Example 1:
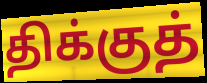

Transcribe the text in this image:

திக்குத்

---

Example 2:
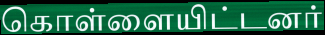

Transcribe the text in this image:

கொள்ளையிட்டனர்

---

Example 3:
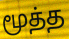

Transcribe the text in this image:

மூத்த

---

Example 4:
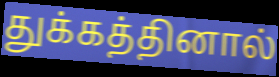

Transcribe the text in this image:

துக்கத்தினால்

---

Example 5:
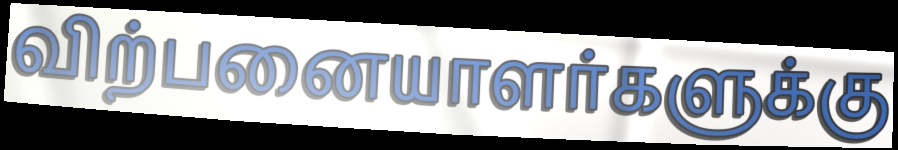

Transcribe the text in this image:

விற்பனையாளர்களுக்கு